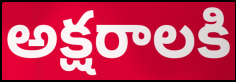
అక్షరాలకి